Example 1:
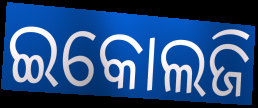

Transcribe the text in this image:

ଇକୋଲଜି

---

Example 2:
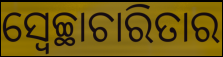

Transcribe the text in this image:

ସ୍ୱେଚ୍ଛାଚାରିତାର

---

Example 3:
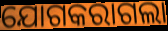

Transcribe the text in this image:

ଯୋଗକରାଗଲା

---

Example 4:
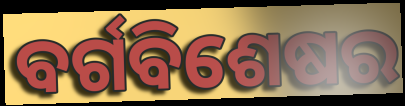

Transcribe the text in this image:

ବର୍ଗବିଶେଷର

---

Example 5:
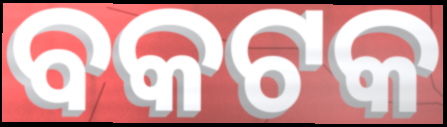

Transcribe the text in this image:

ବକଟକ